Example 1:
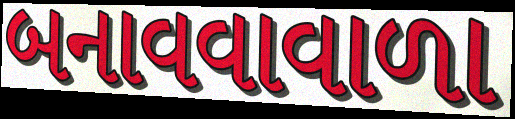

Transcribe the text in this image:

બનાવવાવાળા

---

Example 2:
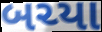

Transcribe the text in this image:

બચ્યા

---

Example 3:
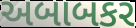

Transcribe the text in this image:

અબાબકર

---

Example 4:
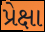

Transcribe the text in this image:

પ્રેક્ષા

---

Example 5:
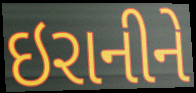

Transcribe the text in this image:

ઇરાનીને